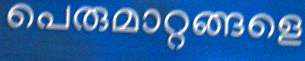
പെരുമാറ്റങ്ങളെ